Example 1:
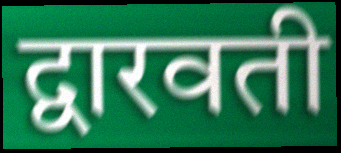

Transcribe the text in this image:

द्वारवती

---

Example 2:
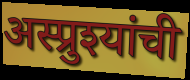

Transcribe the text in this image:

अस्प्रुश्यांची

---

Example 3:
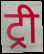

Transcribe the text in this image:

ट्री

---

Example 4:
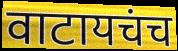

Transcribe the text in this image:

वाटायचंच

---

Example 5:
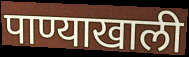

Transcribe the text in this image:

पाण्याखाली